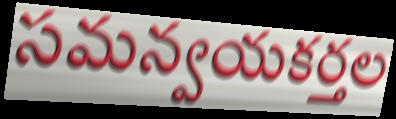
సమన్వయకర్తల